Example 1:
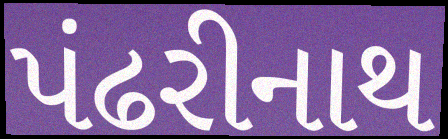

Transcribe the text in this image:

પંઢરીનાથ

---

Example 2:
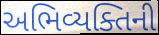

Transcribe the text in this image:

અભિવ્યક્તિની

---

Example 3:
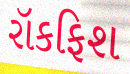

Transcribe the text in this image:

રૉકફિશ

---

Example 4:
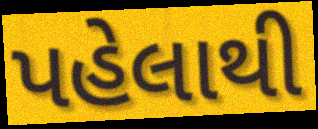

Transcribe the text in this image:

પહેલાથી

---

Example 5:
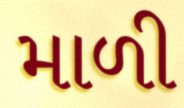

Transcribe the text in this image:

માળી